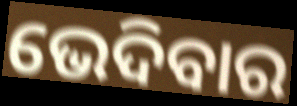
ଭେଦିବାର